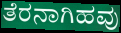
ತೆರನಾಗಿಹವು